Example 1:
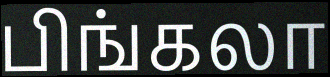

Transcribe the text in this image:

பிங்கலா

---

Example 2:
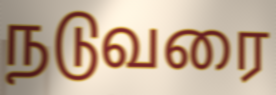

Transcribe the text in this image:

நடுவரை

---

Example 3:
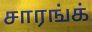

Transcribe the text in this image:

சாரங்க்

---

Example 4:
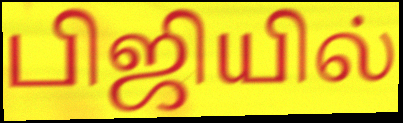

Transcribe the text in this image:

பிஜியில்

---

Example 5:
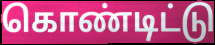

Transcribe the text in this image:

கொண்டிட்டு